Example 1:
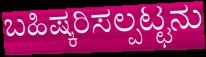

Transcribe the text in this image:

ಬಹಿಷ್ಕರಿಸಲ್ಪಟ್ಟನು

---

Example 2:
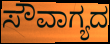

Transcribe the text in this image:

ಸೌವಾಗ್ಯದ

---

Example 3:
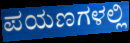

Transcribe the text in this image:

ಪಯಣಗಳಲ್ಲಿ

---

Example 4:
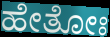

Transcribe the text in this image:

ಹೇತೋಃ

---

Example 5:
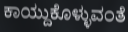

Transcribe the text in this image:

ಕಾಯ್ದುಕೊಳ್ಳುವಂತೆ